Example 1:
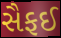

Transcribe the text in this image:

સૈફઈ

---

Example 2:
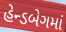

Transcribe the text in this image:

હેન્ડબેગમાં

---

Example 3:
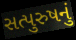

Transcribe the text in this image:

સત્પુરુષનું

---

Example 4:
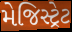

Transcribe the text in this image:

મેજિસ્ટ્રેટ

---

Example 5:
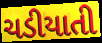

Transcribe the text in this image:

ચડીયાતી